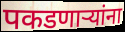
पकडणाऱ्यांना